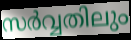
സർവ്വതിലും